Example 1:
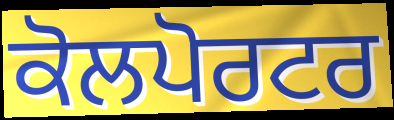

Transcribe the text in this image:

ਕੋਲਪੋਰਟਰ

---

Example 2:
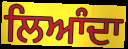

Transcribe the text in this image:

ਲਿਆੰਦਾ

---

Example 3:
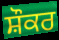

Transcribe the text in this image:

ਸ਼ੌਕਰ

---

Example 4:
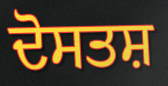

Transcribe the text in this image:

ਦੋਸਤਸ਼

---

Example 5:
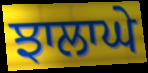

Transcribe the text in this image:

ਝਾਲਾਘੇ